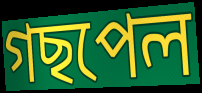
গছপেল